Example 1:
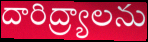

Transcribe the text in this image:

దారిద్ర్యాలను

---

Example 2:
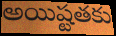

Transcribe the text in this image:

అయిష్టతకు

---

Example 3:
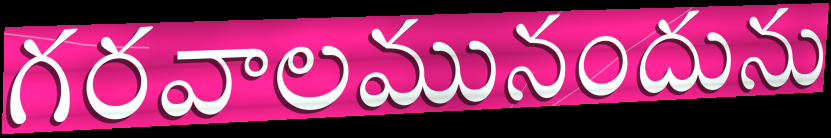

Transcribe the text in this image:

గరవాలమునందును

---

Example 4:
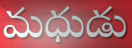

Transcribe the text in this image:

మధుడు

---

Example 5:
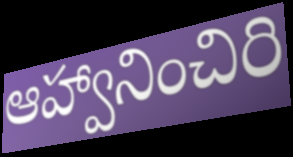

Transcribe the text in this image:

ఆహ్వానించిరి